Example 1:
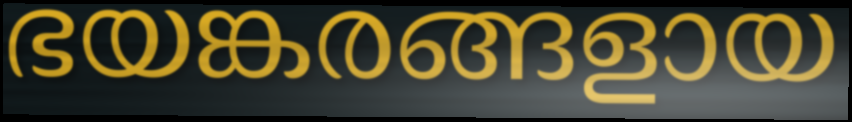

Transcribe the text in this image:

ഭയങ്കരങ്ങളായ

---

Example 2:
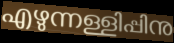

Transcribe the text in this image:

എഴുന്നള്ളിപ്പിനു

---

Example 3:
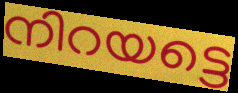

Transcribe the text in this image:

നിറയട്ടെ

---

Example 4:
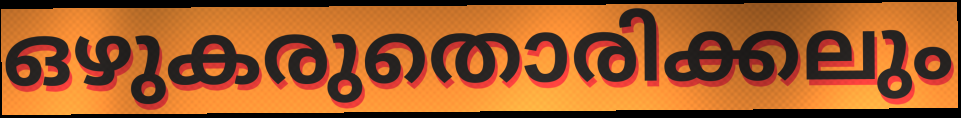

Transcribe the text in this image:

ഒഴുകരുതൊരിക്കലും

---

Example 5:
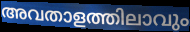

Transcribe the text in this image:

അവതാളത്തിലാവും